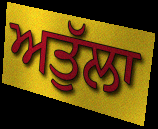
ਅਤੁੱਲਾ